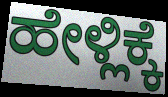
ಹೇಳ್ಲಿಕ್ಕೆ